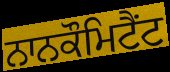
ਨਾਨਕੌਮਿਟੈਂਟ